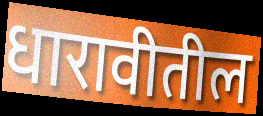
धारावीतील